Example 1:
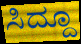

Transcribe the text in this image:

ಸಿದ್ದೂ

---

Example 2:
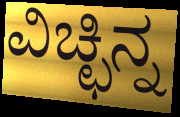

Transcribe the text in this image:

ವಿಚ್ಛಿನ್ನ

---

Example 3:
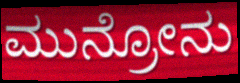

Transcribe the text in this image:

ಮುನ್ರೋನು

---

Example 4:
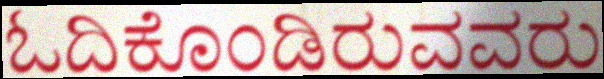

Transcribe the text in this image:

ಓದಿಕೊಂಡಿರುವವರು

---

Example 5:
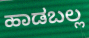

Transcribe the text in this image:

ಹಾಡಬಲ್ಲ